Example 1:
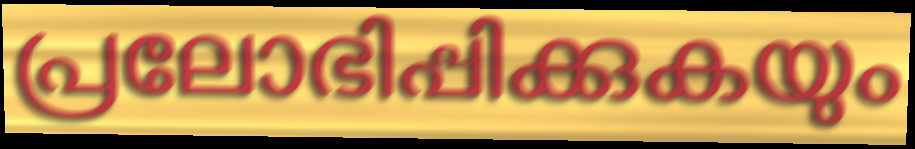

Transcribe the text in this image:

പ്രലോഭിപ്പിക്കുകയും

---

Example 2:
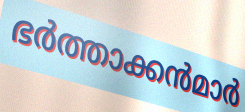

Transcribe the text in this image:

ഭർത്താക്കൻമാർ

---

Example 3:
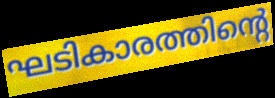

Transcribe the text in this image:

ഘടികാരത്തിന്റെ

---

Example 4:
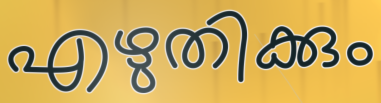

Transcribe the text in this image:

എഴുതിക്കും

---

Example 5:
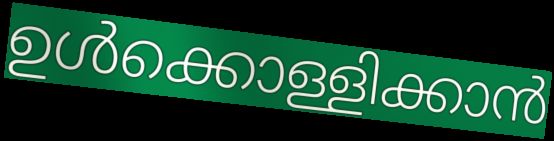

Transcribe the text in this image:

ഉൾക്കൊള്ളിക്കാൻ